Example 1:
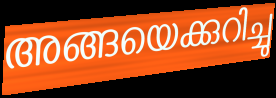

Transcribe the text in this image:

അങ്ങയെക്കുറിച്ചു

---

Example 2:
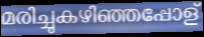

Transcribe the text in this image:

മരിച്ചുകഴിഞ്ഞപ്പോള്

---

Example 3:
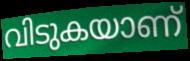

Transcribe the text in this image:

വിടുകയാണ്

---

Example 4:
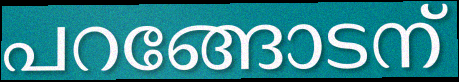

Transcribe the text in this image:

പറങ്ങോടന്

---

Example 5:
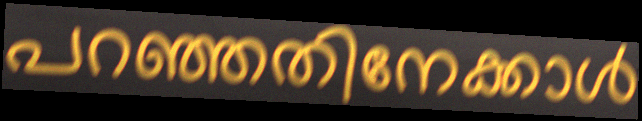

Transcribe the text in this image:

പറഞ്ഞതിനേക്കാൾ